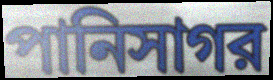
পানিসাগর